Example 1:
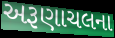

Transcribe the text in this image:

અરૂણાચલના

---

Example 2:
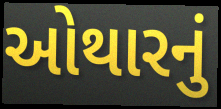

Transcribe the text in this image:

ઓથારનું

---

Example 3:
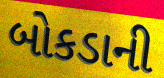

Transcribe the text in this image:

બોકડાની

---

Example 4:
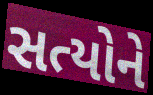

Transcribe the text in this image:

સત્યોને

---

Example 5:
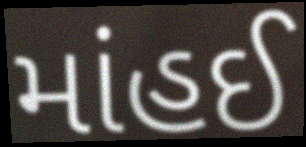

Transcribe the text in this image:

માંહઈ